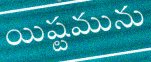
యిష్టమును